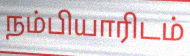
நம்பியாரிடம்